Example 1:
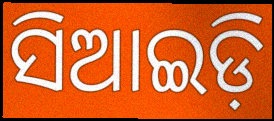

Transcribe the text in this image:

ସିଆଇଡ଼ି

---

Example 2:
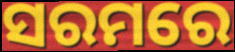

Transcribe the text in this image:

ସରମରେ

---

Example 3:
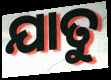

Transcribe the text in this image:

ଯାତୁ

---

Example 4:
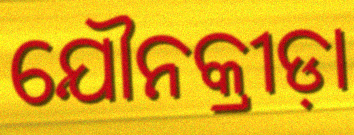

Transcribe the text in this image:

ଯୌନକ୍ରୀଡ଼ା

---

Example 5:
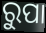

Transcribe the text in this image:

ରୁପା